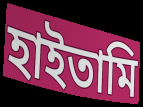
হাইতামি